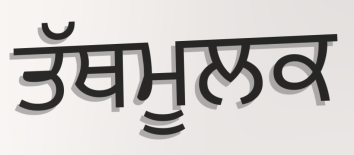
ਤੱਥਮੂਲਕ